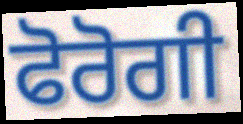
ਫੋਰੋਗੀ